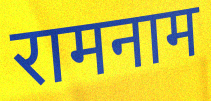
रामनाम